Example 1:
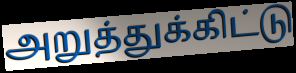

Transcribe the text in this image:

அறுத்துக்கிட்டு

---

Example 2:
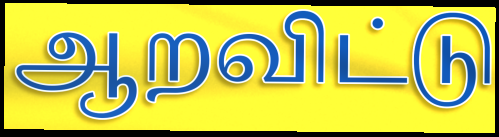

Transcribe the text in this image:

ஆறவிட்டு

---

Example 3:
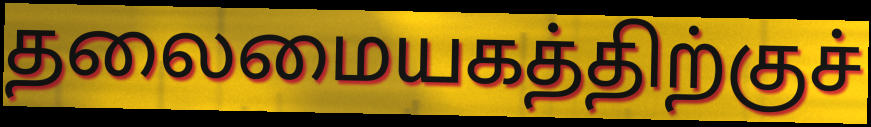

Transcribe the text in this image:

தலைமையகத்திற்குச்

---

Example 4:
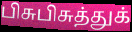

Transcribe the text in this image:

பிசுபிசுத்துக்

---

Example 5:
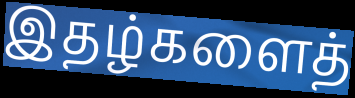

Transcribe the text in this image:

இதழ்களைத்